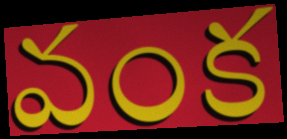
వంక